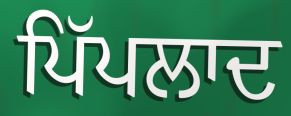
ਪਿੱਪਲਾਦ